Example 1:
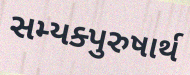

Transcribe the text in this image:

સમ્યક્પુરુષાર્થ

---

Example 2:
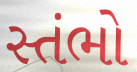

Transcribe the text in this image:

સ્તંભો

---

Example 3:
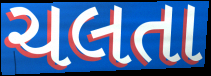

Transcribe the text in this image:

ચલતા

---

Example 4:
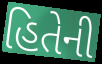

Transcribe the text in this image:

હિતેની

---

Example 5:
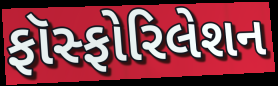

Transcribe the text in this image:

ફૉસ્ફોરિલેશન